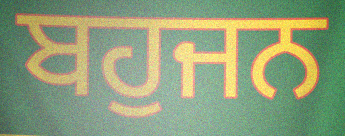
ਬਹੁਜਨ